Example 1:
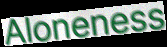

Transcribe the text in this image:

Aloneness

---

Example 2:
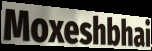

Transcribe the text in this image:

Moxeshbhai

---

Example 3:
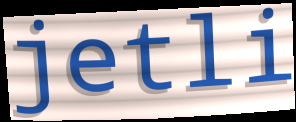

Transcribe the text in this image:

jetli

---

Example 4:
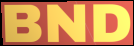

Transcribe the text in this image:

BND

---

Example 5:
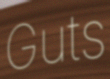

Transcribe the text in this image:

Guts